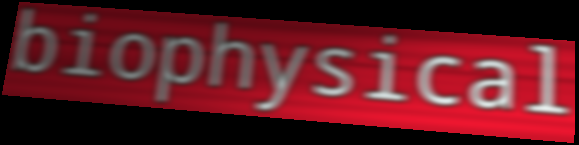
biophysical